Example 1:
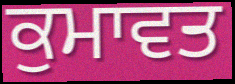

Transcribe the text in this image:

ਕੁਮਾਵਤ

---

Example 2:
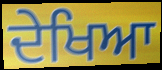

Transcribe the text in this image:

ਦੇਖਿਆ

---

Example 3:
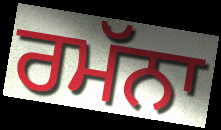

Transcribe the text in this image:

ਰਮੱਨਾ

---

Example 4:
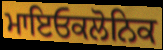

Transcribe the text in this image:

ਮਾਇਓਕਲੋਨਿਕ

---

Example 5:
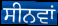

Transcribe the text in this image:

ਸੀਨਵਾਂ